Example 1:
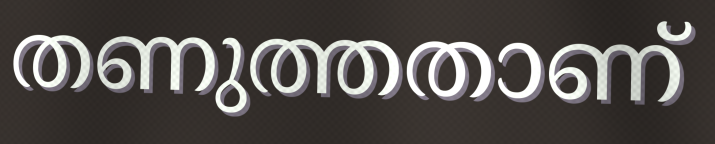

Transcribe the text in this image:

തണുത്തതാണ്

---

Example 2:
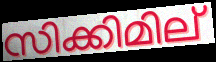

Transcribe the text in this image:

സിക്കിമില്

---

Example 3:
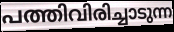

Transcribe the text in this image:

പത്തിവിരിച്ചാടുന്ന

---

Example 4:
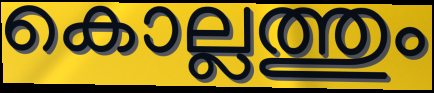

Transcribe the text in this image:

കൊല്ലത്തും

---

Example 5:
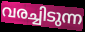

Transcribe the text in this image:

വരച്ചിടുന്ന